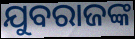
ଯୁବରାଜଙ୍କ